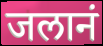
जलानं